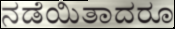
ನಡೆಯಿತಾದರೂ